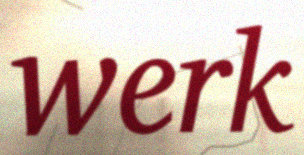
werk